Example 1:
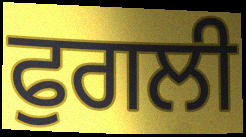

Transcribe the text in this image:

ਫੁਗਲੀ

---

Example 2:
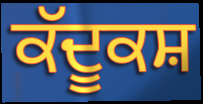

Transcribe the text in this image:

ਕੱਦੂਕਸ਼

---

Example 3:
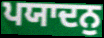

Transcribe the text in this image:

ਪਯਾਦਨੁ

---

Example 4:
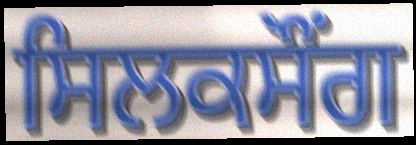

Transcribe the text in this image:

ਸਿਲਕਸੌਂਗ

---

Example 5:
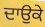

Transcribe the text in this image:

ਦਾਉਕੇ